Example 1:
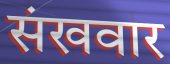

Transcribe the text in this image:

संखवार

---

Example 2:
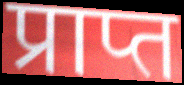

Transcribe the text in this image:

प्राप्‍त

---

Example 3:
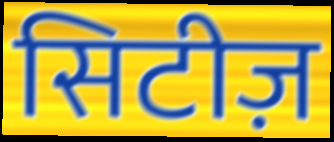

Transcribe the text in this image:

सिटीज़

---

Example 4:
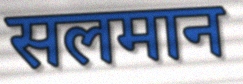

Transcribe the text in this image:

सलमान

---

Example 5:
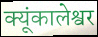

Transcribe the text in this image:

क्यूंकालेश्वर